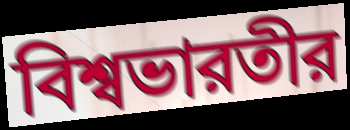
বিশ্বভারতীর